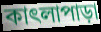
কাৎলাপাড়া